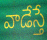
వాడేస్తే